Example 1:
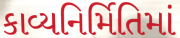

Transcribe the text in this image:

કાવ્યનિર્મિતિમાં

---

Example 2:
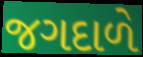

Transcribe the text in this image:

જગદાળે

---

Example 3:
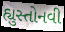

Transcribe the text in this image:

હ્યુસ્તોનવી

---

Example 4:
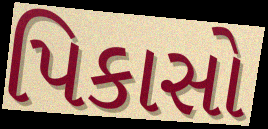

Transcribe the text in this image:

પિકાસો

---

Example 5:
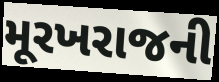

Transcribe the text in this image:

મૂરખરાજની